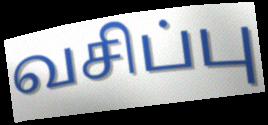
வசிப்பு